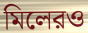
মিলেরও